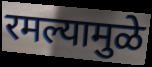
रमल्यामुळे